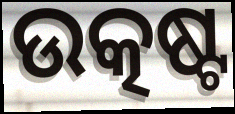
ଉତ୍କଷ୍ଟ